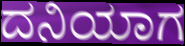
ದನಿಯಾಗ